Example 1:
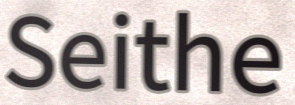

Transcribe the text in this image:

Seithe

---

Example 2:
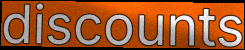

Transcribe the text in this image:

discounts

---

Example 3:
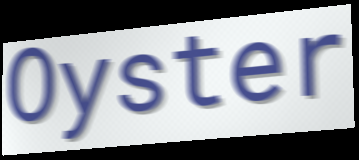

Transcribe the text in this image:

Oyster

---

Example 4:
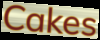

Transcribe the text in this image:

Cakes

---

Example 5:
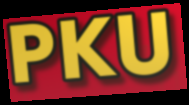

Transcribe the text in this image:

PKU